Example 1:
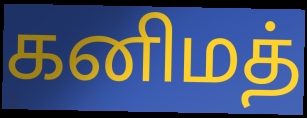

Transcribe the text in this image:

கனிமத்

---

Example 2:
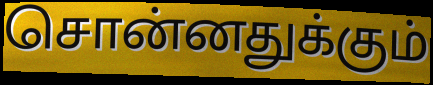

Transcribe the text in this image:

சொன்னதுக்கும்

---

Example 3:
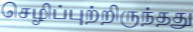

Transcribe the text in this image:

செழிப்புற்றிருந்தது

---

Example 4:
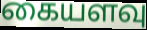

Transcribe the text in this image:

கையளவு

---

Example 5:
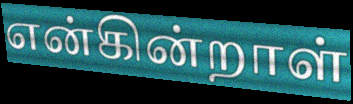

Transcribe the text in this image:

என்கின்றாள்